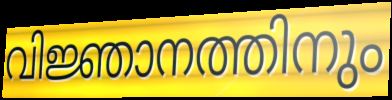
വിജ്ഞാനത്തിനും